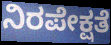
ನಿರಪೇಕ್ಷತೆ